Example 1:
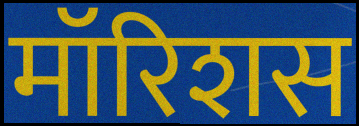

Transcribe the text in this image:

मॉरिशस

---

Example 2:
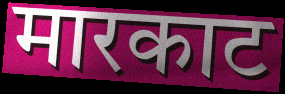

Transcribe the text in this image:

मारकाट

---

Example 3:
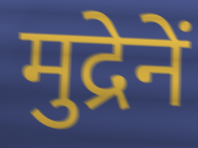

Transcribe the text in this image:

मुद्रेनें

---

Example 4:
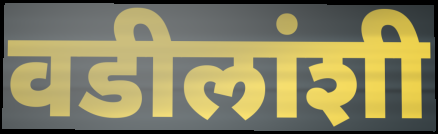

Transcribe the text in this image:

वडीलांशी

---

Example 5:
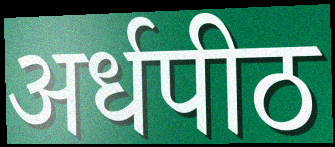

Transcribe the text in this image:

अर्धपीठ